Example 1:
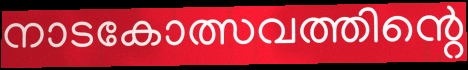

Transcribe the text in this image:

നാടകോത്സവത്തിന്റെ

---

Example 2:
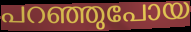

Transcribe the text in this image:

പറഞ്ഞുപോയ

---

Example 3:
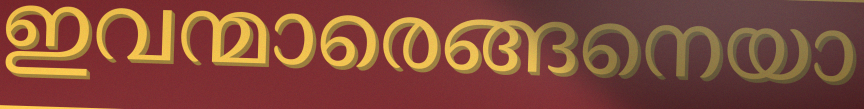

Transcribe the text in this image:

ഇവന്മാരെങ്ങനെയാ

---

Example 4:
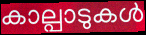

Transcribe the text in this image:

കാല്പാടുകൾ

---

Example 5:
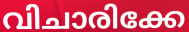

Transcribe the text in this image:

വിചാരിക്കേ